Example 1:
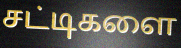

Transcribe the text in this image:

சட்டிகளை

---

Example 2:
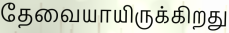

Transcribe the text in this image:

தேவையாயிருக்கிறது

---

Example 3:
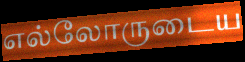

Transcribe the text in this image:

எல்லோருடைய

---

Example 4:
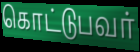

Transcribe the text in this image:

கொட்டுபவர்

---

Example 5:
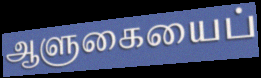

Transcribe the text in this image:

ஆளுகையைப்